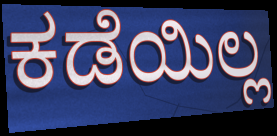
ಕಡೆಯಿಲ್ಲ